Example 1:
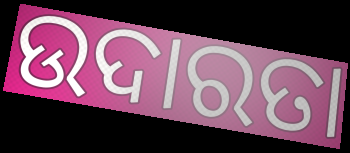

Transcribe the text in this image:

ଉଦାରତା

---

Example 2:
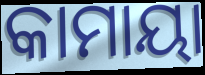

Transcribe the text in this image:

କାମାୟା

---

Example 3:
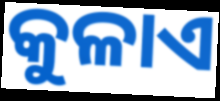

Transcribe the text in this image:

କୁଳାଏ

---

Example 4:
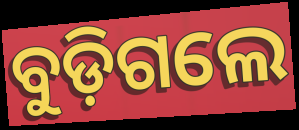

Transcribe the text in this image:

ବୁଡ଼ିଗଲେ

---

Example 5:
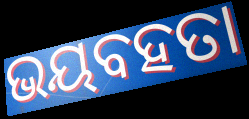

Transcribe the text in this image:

ଭୟବହତା